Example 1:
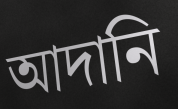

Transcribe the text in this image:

আদানি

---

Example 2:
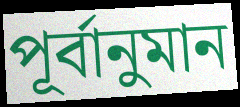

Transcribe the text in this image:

পূর্বানুমান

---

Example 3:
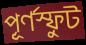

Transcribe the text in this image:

পূর্ণস্ফুট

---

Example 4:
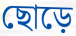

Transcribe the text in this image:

ছোড়ে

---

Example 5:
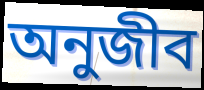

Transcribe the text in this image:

অনুজীব